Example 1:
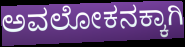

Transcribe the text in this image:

ಅವಲೋಕನಕ್ಕಾಗಿ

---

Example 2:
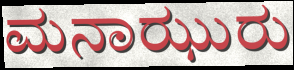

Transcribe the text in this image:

ಮನಾಝುರು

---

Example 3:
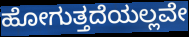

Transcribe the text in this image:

ಹೋಗುತ್ತದೆಯಲ್ಲವೇ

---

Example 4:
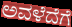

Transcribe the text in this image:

ಅವಳೆದೆಗೆ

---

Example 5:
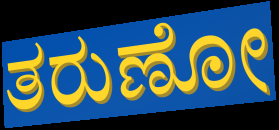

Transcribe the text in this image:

ತರುಣೋ